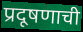
प्रदूषणाची